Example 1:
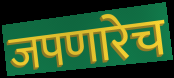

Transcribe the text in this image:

जपणारेच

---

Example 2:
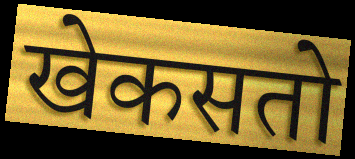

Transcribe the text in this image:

खेकसतो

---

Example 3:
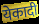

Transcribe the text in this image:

येकादी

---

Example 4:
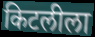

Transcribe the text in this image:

किटलीला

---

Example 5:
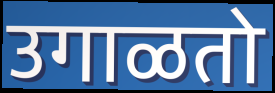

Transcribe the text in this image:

उगाळतो